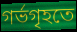
গর্ভগৃহতে